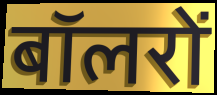
बॉलरों